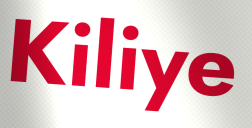
Kiliye